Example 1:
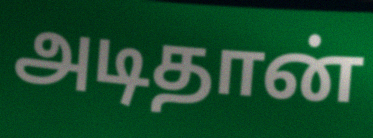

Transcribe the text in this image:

அடிதான்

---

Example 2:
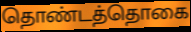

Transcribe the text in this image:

தொண்டத்தொகை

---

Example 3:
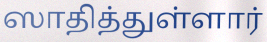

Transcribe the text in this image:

ஸாதித்துள்ளார்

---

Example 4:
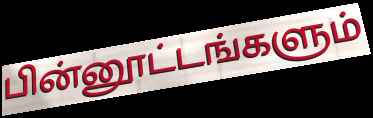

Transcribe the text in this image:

பின்னூட்டங்களும்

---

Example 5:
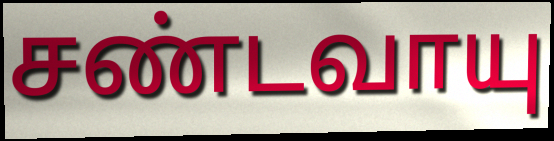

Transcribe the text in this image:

சண்டவாயு